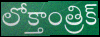
లోక్తాంత్రిక్